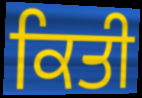
ਕਿਤੀ